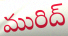
మురిద్